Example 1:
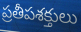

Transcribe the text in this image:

ప్రతీపశక్తులు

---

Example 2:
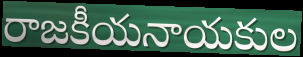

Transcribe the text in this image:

రాజకీయనాయకుల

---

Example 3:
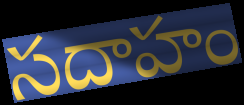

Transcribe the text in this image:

సదాహం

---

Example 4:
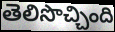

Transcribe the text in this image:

తెలిసొచ్చింది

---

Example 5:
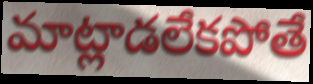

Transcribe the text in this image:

మాట్లాడలేకపోతే